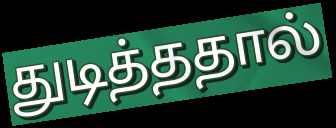
துடித்ததால்